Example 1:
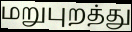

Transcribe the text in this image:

மறுபுறத்து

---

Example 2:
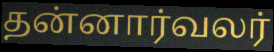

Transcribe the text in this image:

தன்னார்வலர்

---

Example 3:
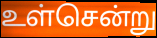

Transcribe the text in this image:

உள்சென்று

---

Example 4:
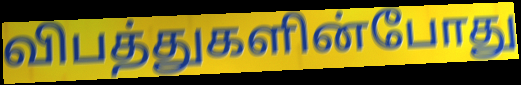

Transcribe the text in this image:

விபத்துகளின்போது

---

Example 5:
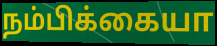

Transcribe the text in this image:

நம்பிக்கையா